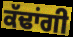
ਕੱਢਾਂਗੀ